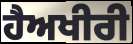
ਹੈਅਖੀਰੀ